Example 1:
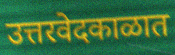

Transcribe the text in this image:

उत्तरवेदकाळात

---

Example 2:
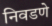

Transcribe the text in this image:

निवडणे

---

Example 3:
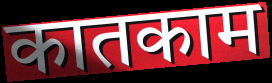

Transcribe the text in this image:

कातकाम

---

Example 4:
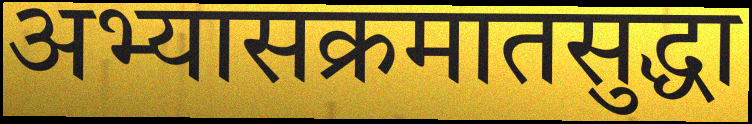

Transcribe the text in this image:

अभ्यासक्रमातसुद्धा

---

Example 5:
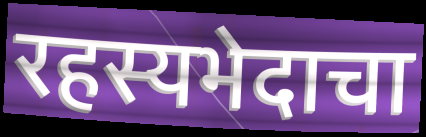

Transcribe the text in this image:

रहस्यभेदाचा